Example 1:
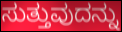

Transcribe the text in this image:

ಸುತ್ತುವುದನ್ನು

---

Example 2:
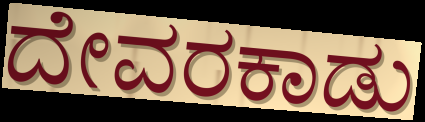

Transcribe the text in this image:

ದೇವರಕಾಡು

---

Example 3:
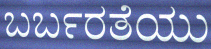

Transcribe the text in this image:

ಬರ್ಬರತೆಯು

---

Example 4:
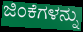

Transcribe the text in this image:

ಜಿಂಕೆಗಳನ್ನು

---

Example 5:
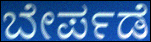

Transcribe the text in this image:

ಬೇರ್ಪಡೆ